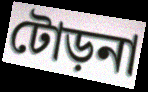
টোড়না